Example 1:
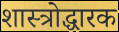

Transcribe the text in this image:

शास्त्रोद्धारक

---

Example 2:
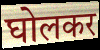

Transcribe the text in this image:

घोलकर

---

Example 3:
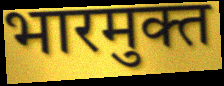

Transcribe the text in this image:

भारमुक्त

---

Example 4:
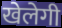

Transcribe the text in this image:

खेलेगी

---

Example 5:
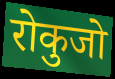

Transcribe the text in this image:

रोकुजो